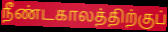
நீண்டகாலத்திற்குப்